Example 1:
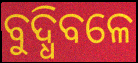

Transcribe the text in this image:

ବୁଦ୍ଧିବଳେ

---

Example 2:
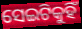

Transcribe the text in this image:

ସେଇଟିକୁହିଁ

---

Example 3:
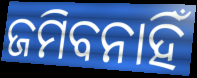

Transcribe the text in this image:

ଜମିବନାହିଁ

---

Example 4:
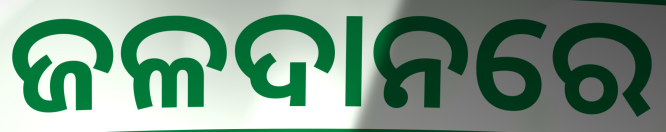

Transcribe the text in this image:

ଜଳଦାନରେ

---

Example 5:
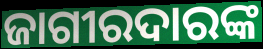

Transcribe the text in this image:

ଜାଗୀରଦାରଙ୍କ